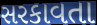
સરકાવતા